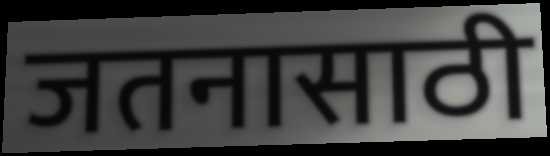
जतनासाठी